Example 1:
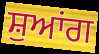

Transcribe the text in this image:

ਸ਼ੁਆਂਗ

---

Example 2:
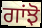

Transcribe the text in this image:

ਗਾਂਝੋ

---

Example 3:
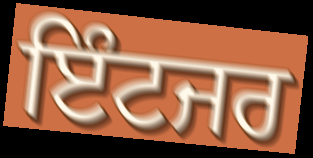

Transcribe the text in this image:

ਇੰਟਜਰ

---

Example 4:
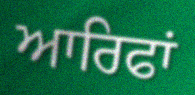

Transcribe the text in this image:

ਆਰਿਫਾਂ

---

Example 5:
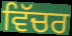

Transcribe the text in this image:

ਵਿੱਚਰ